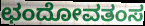
ಛಂದೋವತಂಸ